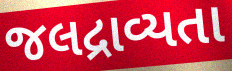
જલદ્રાવ્યતા